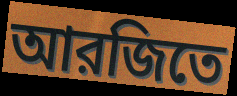
আরজিতে